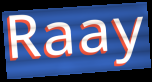
Raay